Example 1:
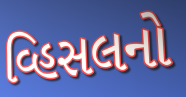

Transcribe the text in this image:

વ્હિસલનો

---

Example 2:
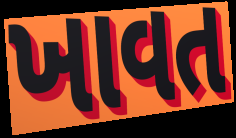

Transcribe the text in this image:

ખાવત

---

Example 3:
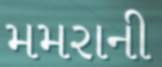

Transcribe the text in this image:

મમરાની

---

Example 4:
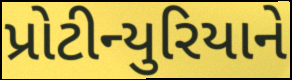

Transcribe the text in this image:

પ્રોટીન્યુરિયાને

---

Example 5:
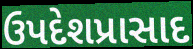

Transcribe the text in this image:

ઉપદેશપ્રાસાદ